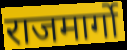
राजमार्गो